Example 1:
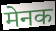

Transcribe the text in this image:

मेनक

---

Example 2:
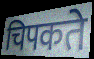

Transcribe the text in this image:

चिपकते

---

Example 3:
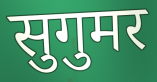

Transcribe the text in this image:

सुगुमर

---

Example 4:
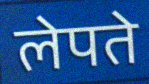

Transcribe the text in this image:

लेपते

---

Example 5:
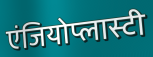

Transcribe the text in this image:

एंजियोप्लास्टी